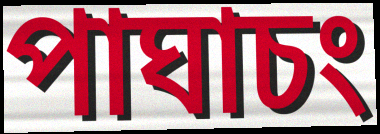
পাঘাচং